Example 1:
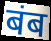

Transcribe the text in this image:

बंब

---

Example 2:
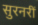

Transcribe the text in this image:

सुरनरीं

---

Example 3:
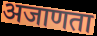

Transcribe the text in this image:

अजाणता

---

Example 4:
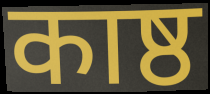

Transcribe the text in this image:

काष्ठ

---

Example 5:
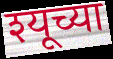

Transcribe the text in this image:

श्यूच्या